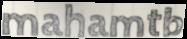
mahamtb